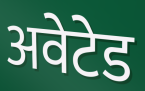
अवेटेड